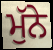
ਮੁੱਨੇ